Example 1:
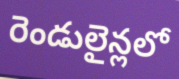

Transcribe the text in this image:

రెండులైన్లలో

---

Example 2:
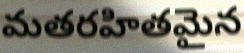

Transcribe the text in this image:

మతరహితమైన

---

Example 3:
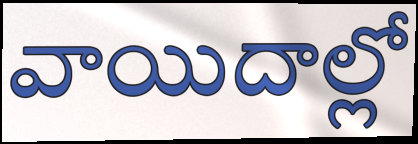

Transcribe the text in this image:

వాయిదాల్లో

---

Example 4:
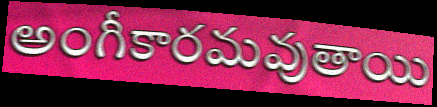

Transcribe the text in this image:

అంగీకారమవుతాయి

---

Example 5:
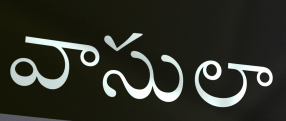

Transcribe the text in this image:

వాసులా